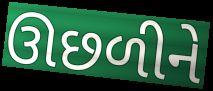
ઊછળીને